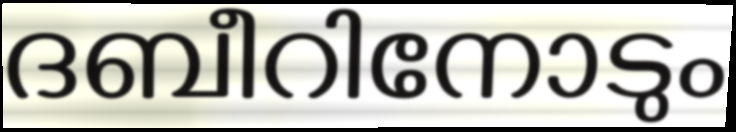
ദബീറിനോടും